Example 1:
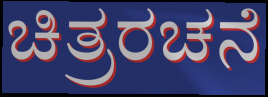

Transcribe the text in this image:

ಚಿತ್ರರಚನೆ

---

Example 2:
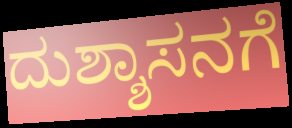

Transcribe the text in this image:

ದುಶ್ಶಾಸನಗೆ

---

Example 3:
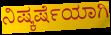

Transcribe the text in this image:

ನಿಷ್ಕರ್ಷೆಯಾಗಿ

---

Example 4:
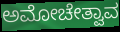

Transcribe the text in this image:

ಅಮೋಚೇತ್ವಾವ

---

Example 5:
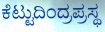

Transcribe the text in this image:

ಕೆಟ್ಟುದಿಂದ್ರಪ್ರಸ್ಥ